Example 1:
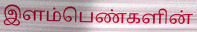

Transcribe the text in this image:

இளம்பெண்களின்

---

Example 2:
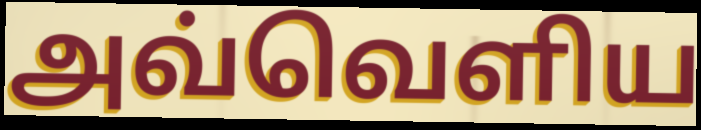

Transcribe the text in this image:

அவ்வெளிய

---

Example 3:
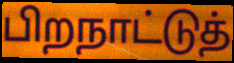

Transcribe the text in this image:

பிறநாட்டுத்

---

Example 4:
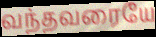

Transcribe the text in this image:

வந்தவரையே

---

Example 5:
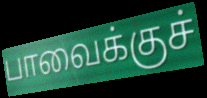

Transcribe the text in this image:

பாவைக்குச்